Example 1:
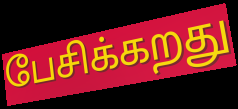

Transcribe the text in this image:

பேசிக்கறது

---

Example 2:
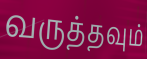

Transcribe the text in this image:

வருத்தவும்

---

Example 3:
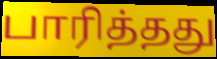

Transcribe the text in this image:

பாரித்தது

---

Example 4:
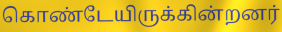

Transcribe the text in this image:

கொண்டேயிருக்கின்றனர்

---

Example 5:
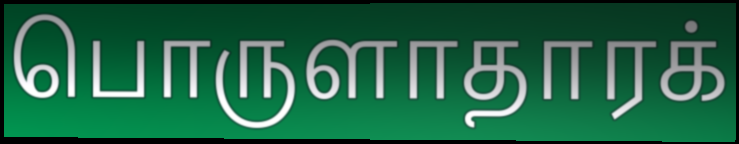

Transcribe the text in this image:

பொருளாதாரக்